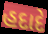
હદાદે